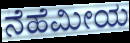
ನೆಹೆಮೀಯ